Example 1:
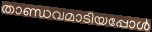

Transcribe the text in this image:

താണ്ഡവമാടിയപ്പോൾ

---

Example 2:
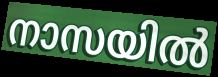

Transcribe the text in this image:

നാസയിൽ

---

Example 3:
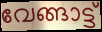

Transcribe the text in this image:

വേങ്ങാട്ട്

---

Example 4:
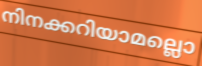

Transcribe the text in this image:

നിനക്കറിയാമല്ലൊ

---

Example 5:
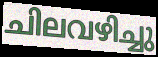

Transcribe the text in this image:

ചിലവഴിച്ചു